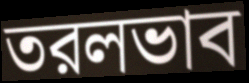
তরলভাব